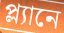
প্ল্যানে